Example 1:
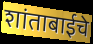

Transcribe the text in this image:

शांताबाईचे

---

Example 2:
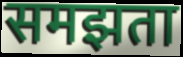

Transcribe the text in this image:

समझता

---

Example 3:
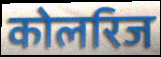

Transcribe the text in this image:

कोलरिज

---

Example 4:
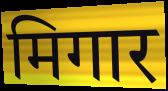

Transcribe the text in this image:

मिगार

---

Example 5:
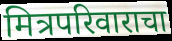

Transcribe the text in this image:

मित्रपरिवाराचा